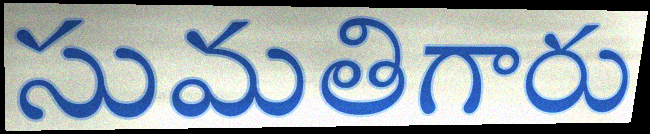
సుమతిగారు